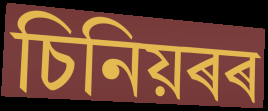
চিনিয়ৰৰ